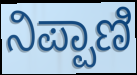
ನಿಪ್ಪಾಣಿ